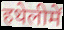
हथेलीमें